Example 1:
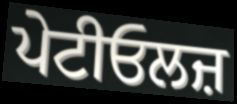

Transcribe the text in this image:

ਪੇਟੀਓਲਜ਼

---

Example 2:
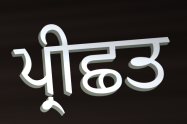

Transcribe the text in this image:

ਪ੍ਰੀਛਤ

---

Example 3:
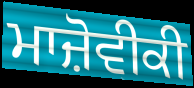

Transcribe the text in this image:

ਮਾਜ਼ੋਵੀਕੀ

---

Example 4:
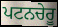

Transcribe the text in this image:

ਪਟਨਚੇਰੂ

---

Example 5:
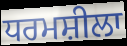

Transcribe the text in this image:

ਧਰਮਸ਼ੀਲਾ